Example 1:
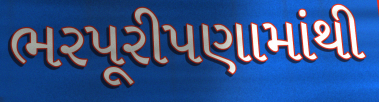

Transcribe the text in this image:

ભરપૂરીપણામાંથી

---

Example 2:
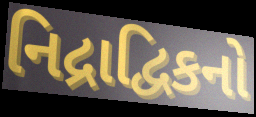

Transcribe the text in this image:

નિદ્રાદ્વિકનો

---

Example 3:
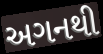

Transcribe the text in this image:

અગનથી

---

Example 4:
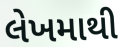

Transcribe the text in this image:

લેખમાથી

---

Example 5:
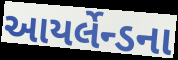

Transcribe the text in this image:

આયર્લેન્ડના